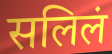
सलिलं